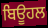
ਬਿਊਹਲ